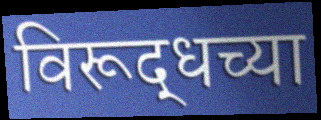
विरूद्धच्या